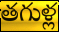
తగుళ్ల